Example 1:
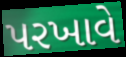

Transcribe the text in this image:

પરખાવે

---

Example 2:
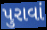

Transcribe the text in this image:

પુરાવાં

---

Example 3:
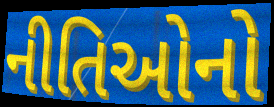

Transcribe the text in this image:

નીતિઓનો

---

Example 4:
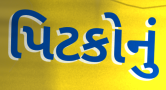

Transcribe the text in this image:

પિટકોનું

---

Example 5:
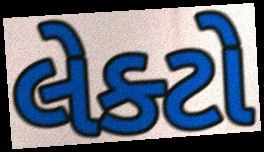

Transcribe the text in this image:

લેક્ટો